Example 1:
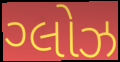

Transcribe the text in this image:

ગ્લોઝ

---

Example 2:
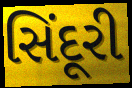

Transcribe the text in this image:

સિંદૂરી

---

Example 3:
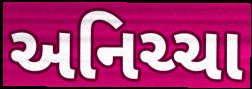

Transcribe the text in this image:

અનિચ્ચા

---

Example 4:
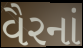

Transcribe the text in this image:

વૈરનાં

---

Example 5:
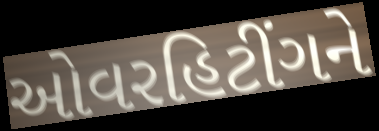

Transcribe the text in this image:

ઓવરહિટીંગને